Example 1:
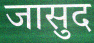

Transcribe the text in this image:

जासुद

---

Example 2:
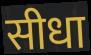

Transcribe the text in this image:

सीधा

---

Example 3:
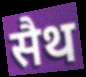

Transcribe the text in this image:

सैथ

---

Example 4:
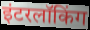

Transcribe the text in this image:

इंटरलॉकिंग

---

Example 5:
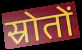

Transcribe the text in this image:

स्रोतों